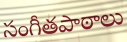
సంగీతపాఠాలు